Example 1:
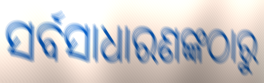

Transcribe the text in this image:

ସର୍ବସାଧାରଣଙ୍କଠାରୁ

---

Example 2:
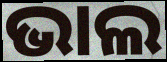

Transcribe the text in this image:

ଭାଲ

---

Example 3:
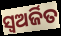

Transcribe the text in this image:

ସ୍ୱଅର୍ଜିତ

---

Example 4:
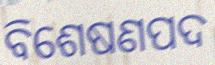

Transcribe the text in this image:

ବିଶେଷଣପଦ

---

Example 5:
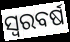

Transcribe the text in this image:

ସ୍ଵରବର୍ଷ